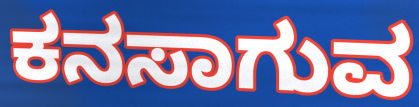
ಕನಸಾಗುವ